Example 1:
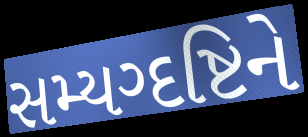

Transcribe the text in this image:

સમ્યગ્દષ્ટિને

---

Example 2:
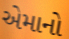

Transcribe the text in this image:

એમાનો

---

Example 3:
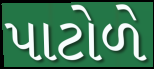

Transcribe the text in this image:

પાટોળે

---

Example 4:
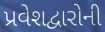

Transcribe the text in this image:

પ્રવેશદ્વારોની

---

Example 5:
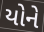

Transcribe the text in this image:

યોને